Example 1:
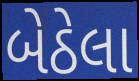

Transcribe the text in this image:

બેઠેલા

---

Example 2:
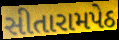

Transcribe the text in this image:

સીતારામપેઠ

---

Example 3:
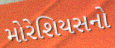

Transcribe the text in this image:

મોરેશિયસનો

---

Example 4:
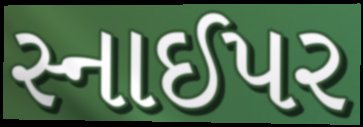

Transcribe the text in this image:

સ્નાઈપર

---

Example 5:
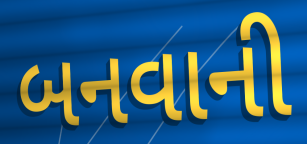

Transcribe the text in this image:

બનવાની